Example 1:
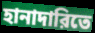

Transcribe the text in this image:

হানাদারিতে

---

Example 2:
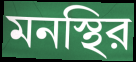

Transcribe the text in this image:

মনস্থির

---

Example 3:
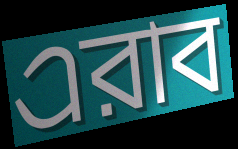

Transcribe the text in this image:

এরাব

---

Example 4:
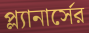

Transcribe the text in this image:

প্ল্যানার্সের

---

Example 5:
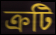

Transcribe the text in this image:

ক্রটি